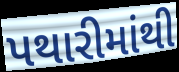
પથારીમાંથી